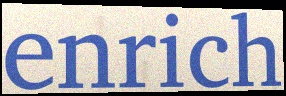
enrich